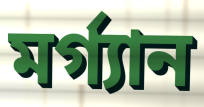
মর্গ্যান